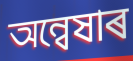
অন্বেষাৰ